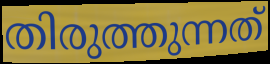
തിരുത്തുന്നത്